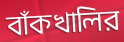
বাঁকখালির